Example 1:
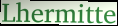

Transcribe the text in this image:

Lhermitte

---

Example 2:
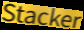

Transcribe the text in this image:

Stacker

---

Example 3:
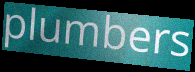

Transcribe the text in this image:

plumbers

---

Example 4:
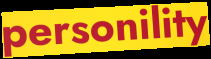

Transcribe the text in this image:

personility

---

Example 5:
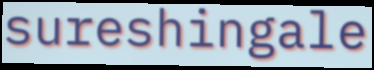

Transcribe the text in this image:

sureshingale